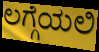
ಲಗ್ಗೆಯಲಿ